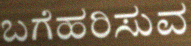
ಬಗೆಹರಿಸುವ